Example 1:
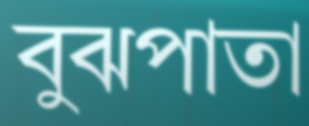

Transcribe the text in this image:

বুঝপাতা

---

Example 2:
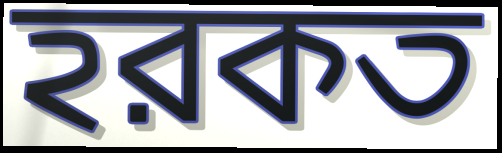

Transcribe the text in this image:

হরকত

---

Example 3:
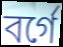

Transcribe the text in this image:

বর্গে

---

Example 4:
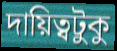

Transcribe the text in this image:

দায়িত্বটুকু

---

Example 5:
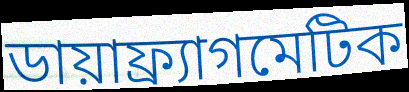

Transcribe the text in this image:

ডায়াফ্র্যাগমেটিক